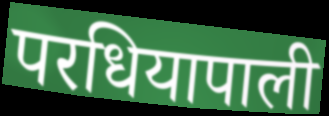
परधियापाली